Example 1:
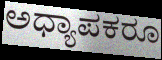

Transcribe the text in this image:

ಅಧ್ಯಾಪಕರೂ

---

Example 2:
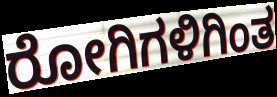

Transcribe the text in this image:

ರೋಗಿಗಳಿಗಿಂತ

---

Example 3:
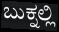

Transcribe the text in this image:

ಬುಕ್ನಲ್ಲಿ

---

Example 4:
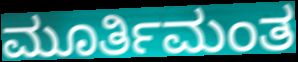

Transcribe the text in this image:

ಮೂರ್ತಿಮಂತ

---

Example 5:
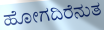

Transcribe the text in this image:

ಹೋಗದಿರೆನುತ